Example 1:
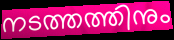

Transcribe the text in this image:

നടത്തത്തിനും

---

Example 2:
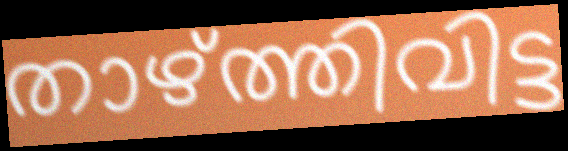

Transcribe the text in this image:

താഴ്ത്തിവിട്ട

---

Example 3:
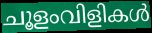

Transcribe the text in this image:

ചൂളംവിളികൾ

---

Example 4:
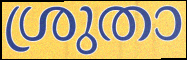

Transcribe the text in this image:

ശ്രുതാ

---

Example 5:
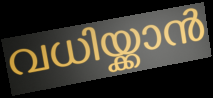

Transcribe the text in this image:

വധിയ്ക്കാൻ